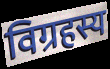
विग्रहस्य